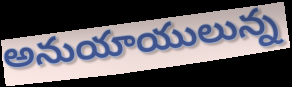
అనుయాయులున్న